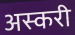
अस्करी